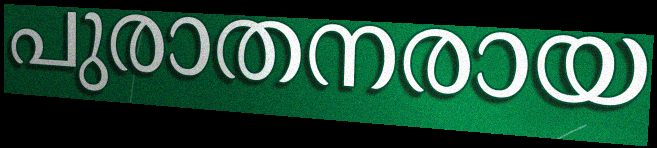
പുരാതനരായ